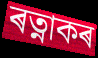
ৰত্নাকৰ